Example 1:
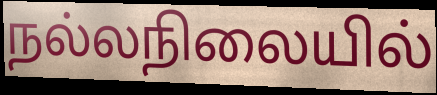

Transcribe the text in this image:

நல்லநிலையில்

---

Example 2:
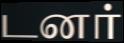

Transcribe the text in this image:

டனர்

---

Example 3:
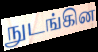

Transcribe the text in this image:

நுடங்கின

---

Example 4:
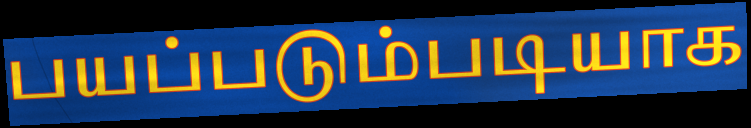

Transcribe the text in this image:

பயப்படும்படியாக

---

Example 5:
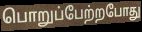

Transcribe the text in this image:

பொறுப்பேற்றபோது